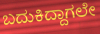
ಬದುಕಿದ್ದಾಗಲೇ